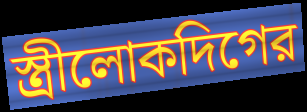
স্ত্রীলোকদিগের